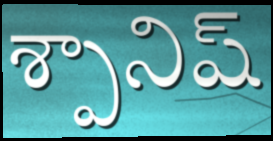
శ్పానిష్